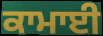
ਕਾਮਾਈ